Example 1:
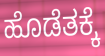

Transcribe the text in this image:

ಹೊಡೆತಕ್ಕೆ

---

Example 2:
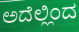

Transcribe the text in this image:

ಅದೆಲ್ಲಿಂದ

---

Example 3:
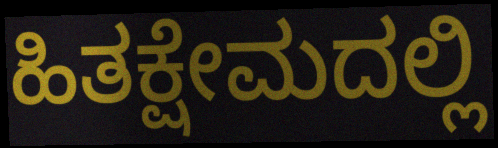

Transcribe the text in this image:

ಹಿತಕ್ಷೇಮದಲ್ಲಿ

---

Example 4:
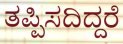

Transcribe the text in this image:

ತಪ್ಪಿಸದಿದ್ದರೆ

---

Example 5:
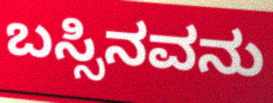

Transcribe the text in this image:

ಬಸ್ಸಿನವನು